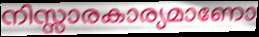
നിസ്സാരകാര്യമാണോ